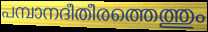
പമ്പാനദീതീരത്തെത്തും